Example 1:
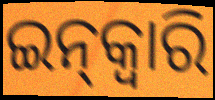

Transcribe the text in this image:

ଇନ୍‌କ୍ଵାରି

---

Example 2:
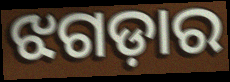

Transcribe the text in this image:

ଝଗଡ଼ାର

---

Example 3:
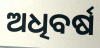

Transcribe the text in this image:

ଅଧିବର୍ଷ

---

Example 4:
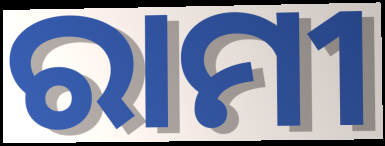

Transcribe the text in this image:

ରାମୀ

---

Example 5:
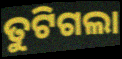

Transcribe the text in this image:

ତୁଟିଗଲା